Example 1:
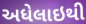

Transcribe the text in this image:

અધેલાઇથી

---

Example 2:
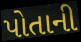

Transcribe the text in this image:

પોતાની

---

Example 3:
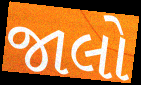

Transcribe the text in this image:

જાલો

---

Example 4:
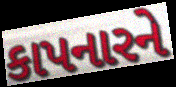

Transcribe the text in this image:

કાપનારને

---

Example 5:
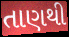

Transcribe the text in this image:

તાણથી